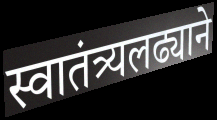
स्वातंत्र्यलढ्याने